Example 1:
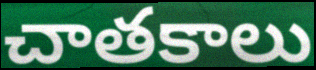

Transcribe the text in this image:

చాతకాలు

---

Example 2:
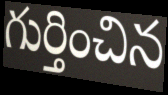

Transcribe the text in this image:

గుర్తించిన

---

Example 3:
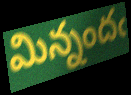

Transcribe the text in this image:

మిన్నందఁ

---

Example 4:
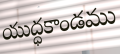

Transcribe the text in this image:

యుద్ధకాండము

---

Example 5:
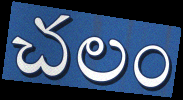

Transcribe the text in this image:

చలం